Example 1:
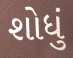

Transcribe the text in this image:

શોધું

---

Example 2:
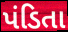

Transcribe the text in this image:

પંડિતા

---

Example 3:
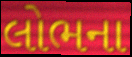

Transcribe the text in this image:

લોભના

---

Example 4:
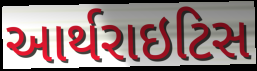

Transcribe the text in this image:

આર્થરાઇટિસ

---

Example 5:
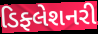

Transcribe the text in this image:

ડિફ્લેશનરી